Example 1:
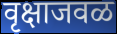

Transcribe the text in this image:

वृक्षाजवळ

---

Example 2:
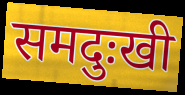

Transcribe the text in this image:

समदुःखी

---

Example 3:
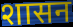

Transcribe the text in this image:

शासन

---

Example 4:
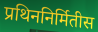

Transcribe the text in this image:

प्रथिननिर्मितीस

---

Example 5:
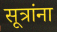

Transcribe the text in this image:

सूत्रांना